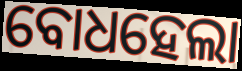
ବୋଧହେଲା